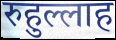
रुहुल्लाह